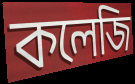
কলেজি